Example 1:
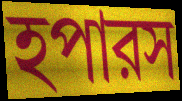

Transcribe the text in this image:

হপারস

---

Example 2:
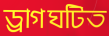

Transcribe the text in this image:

ড্রাগঘটিত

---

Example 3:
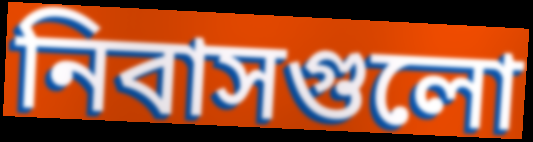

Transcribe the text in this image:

নিবাসগুলো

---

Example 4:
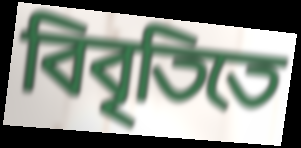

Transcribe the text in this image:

বিবৃতিতে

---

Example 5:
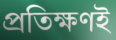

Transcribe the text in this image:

প্রতিক্ষণই